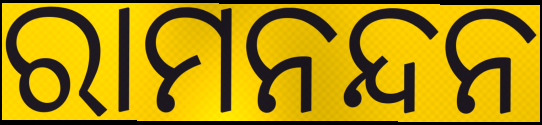
ରାମନନ୍ଦନ